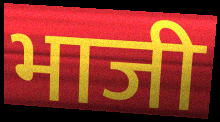
भाजी